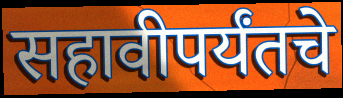
सहावीपर्यंतचे